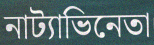
নাট্যাভিনেতা